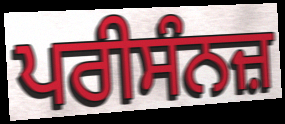
ਪਰੀਸੰਨਜ਼